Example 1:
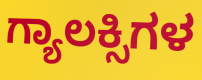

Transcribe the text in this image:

ಗ್ಯಾಲಕ್ಸಿಗಳ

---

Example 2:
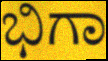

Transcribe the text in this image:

ಭಿಗಾ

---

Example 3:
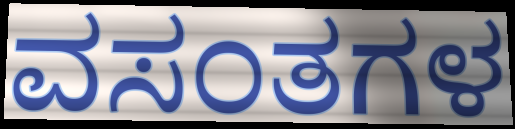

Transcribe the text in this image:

ವಸಂತಗಳ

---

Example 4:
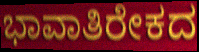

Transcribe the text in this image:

ಭಾವಾತಿರೇಕದ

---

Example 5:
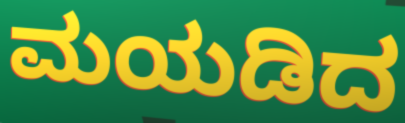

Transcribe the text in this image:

ಮಯಡಿದ